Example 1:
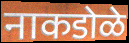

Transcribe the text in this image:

नाकडोळे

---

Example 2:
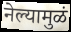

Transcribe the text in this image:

नेल्यामुळं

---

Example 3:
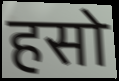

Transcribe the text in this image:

हसो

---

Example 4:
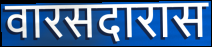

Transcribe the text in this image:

वारसदारास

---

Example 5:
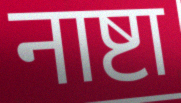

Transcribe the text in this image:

नाष्टा